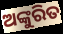
ଅଙ୍କୁରିତ